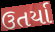
ઉતર્યા